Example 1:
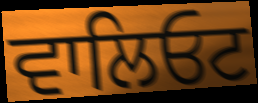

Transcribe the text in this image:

ਵਾਲਿਓਟ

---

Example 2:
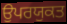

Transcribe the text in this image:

ਉਪਰਯੁਕਤ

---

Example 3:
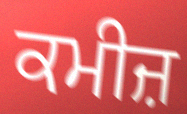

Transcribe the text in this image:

ਕਮੀਜ਼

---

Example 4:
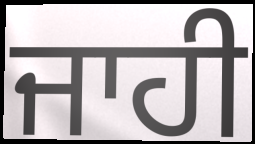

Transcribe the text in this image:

ਜਾਹੀ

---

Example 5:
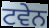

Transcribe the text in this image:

ਟਵੇਨ